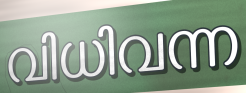
വിധിവന്ന